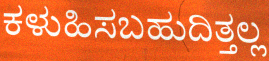
ಕಳುಹಿಸಬಹುದಿತ್ತಲ್ಲ